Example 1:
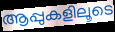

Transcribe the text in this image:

ആപ്പുകളിലൂടെ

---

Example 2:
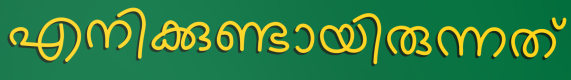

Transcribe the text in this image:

എനിക്കുണ്ടായിരുന്നത്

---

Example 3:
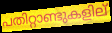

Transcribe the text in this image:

പതിറ്റാണ്ടുകളില്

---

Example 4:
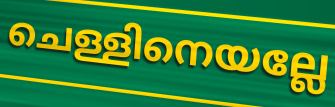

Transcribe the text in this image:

ചെള്ളിനെയല്ലേ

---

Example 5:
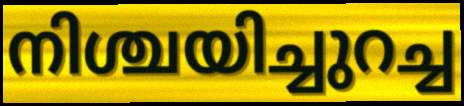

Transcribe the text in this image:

നിശ്ചയിച്ചുറച്ച